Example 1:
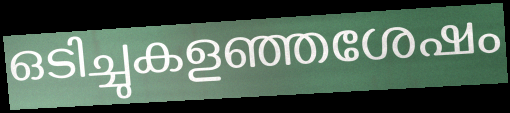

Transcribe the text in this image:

ഒടിച്ചുകളഞ്ഞശേഷം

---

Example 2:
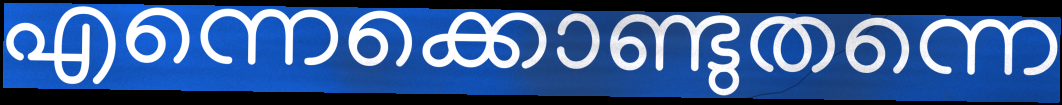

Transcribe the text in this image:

എന്നെക്കൊണ്ടുതന്നെ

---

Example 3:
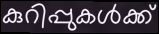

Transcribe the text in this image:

കുറിപ്പുകൾക്ക്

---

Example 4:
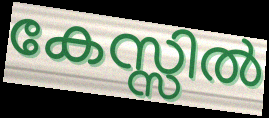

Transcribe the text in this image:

കേസ്സിൽ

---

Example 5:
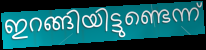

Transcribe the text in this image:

ഇറങ്ങിയിട്ടുണ്ടെന്ന്